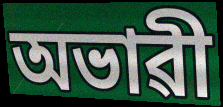
অভাৱী